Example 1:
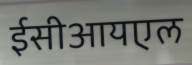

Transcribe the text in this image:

ईसीआयएल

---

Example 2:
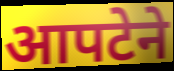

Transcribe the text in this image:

आपटेने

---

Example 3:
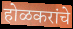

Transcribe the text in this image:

होळकरांचे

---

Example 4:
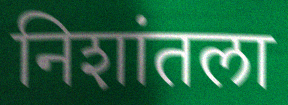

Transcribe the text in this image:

निशांतला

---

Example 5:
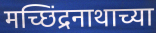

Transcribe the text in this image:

मच्छिंद्रनाथाच्या